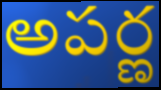
అపర్ణ